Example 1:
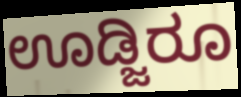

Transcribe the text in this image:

ಊಡ್ಜಿರೂ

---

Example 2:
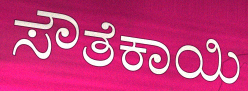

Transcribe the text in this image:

ಸೌತೆಕಾಯಿ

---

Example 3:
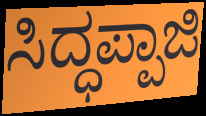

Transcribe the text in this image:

ಸಿದ್ಧಪ್ಪಾಜಿ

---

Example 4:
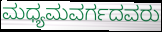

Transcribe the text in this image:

ಮಧ್ಯಮವರ್ಗದವರು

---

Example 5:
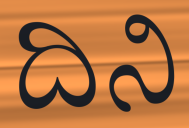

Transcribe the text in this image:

ದಿನಿ